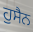
ਹੁਸੈਨ